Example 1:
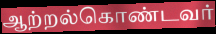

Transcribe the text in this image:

ஆற்றல்கொண்டவர்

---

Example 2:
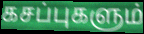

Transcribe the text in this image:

கசப்புகளும்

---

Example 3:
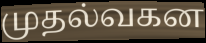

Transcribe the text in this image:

முதல்வகன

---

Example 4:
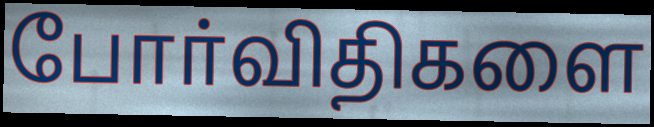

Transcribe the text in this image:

போர்விதிகளை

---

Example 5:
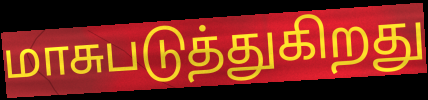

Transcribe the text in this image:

மாசுபடுத்துகிறது